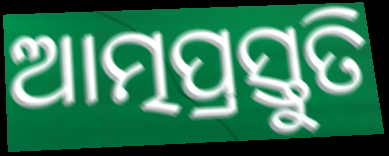
ଆତ୍ମପ୍ରସ୍ତୁତି